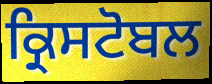
ਕ੍ਰਿਸਟੋਬਲ